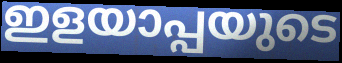
ഇളയാപ്പയുടെ